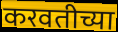
करवतीच्या